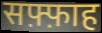
सफ़्फ़ाह